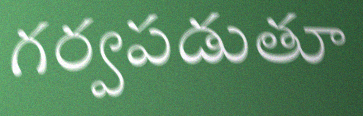
గర్వపడుతూ